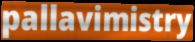
pallavimistry